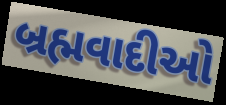
બ્રહ્મવાદીઓ